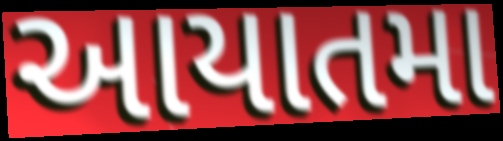
આયાતમા